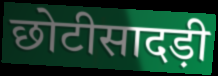
छोटीसादड़ी